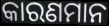
କାରଣମାନ